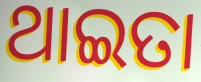
ଥାଇତା